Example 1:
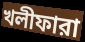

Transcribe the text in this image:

খলীফারা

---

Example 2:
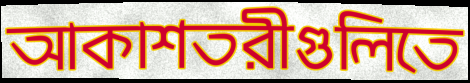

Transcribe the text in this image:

আকাশতরীগুলিতে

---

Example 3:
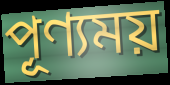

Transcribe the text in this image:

পূণ্যময়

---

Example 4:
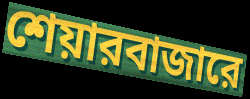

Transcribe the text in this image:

শেয়ারবাজারে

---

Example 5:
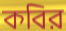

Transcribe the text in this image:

কবির